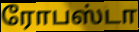
ரோபஸ்டா